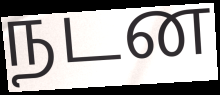
நடன